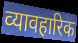
व्‍यावहारिक